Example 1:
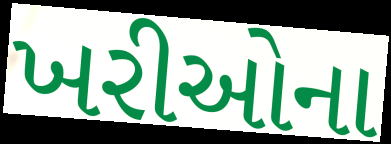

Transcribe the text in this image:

ખરીઓના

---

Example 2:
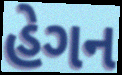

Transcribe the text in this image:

હેગન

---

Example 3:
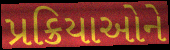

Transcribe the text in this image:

પ્રક્રિયાઓને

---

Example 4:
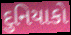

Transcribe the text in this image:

દુનિયાકો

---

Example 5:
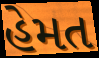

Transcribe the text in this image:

હેમત